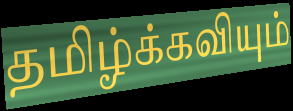
தமிழ்க்கவியும்